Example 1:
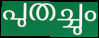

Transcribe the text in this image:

പുതച്ചും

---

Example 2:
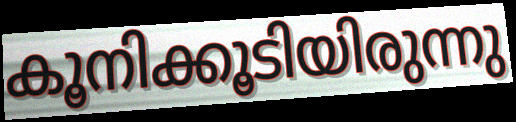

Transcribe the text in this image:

കൂനിക്കൂടിയിരുന്നു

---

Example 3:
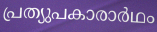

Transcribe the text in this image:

പ്രത്യുപകാരാർഥം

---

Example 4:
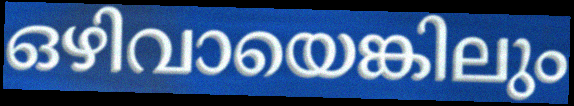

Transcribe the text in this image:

ഒഴിവായെങ്കിലും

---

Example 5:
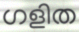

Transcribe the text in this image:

ഗളിത